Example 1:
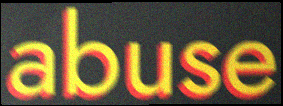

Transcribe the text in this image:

abuse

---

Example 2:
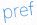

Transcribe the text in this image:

pref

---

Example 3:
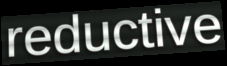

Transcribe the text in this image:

reductive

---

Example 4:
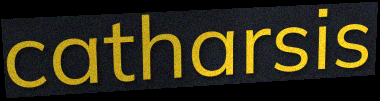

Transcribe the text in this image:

catharsis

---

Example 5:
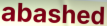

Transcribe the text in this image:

abashed